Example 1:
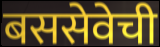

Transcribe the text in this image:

बससेवेची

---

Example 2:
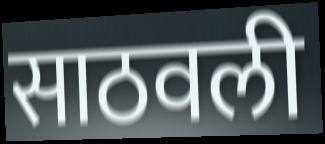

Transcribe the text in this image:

साठवली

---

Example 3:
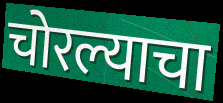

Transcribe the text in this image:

चोरल्याचा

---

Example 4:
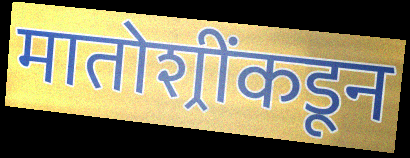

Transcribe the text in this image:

मातोश्रींकडून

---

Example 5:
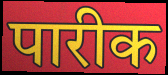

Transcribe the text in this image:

पारीक